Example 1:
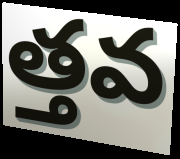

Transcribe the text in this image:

త్తవ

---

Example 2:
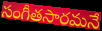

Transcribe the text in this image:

సంగీతసారమనే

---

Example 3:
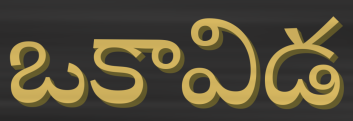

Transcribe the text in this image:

ఒకావిడ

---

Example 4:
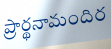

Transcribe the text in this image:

ప్రార్థనామందిర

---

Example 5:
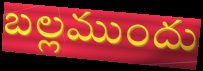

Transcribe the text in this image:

బల్లముందు